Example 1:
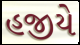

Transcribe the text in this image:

હજીયે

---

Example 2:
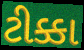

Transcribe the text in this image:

ટીક્કા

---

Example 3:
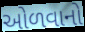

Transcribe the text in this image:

ઓળવાનો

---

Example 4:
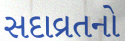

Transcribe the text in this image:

સદાવ્રતનો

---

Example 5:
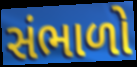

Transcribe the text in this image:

સંભાળો